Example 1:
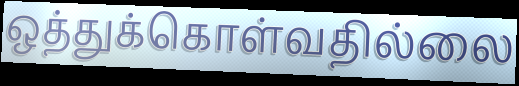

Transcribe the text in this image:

ஒத்துக்கொள்வதில்லை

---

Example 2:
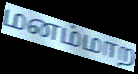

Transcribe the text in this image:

மனம்மாற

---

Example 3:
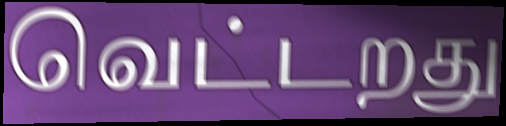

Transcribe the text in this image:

வெட்டறது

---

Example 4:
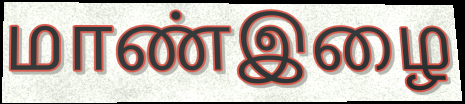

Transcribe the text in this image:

மாண்இழை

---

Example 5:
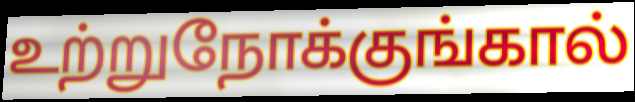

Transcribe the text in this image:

உற்றுநோக்குங்கால்